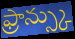
ఫ్రాన్స్కు